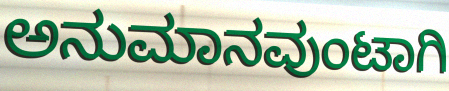
ಅನುಮಾನವುಂಟಾಗಿ